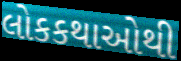
લોકકથાઓથી